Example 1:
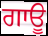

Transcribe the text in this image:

ਗਾਊ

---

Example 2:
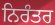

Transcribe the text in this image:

ਨਿਰੰਤਰ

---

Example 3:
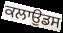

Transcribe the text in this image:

ਕਲਾਉਡਸ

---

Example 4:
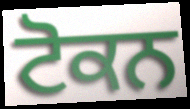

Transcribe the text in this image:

ਟੋਕਨ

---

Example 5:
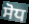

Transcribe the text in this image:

ਸੋਧ